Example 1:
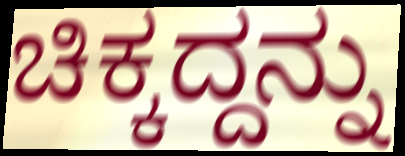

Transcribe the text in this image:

ಚಿಕ್ಕದ್ದನ್ನು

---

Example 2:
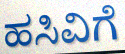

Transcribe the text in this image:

ಹಸಿವಿಗೆ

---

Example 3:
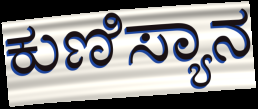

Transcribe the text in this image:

ಕುಣಿಸ್ಯಾನ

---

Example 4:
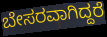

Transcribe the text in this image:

ಬೇಸರವಾಗಿದ್ದರೆ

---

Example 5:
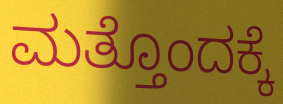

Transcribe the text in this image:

ಮತ್ತೊಂದಕ್ಕೆ